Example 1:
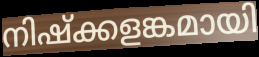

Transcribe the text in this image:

നിഷ്ക്കളങ്കമായി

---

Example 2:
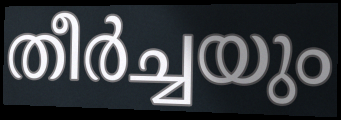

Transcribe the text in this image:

തീർച്ചയും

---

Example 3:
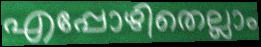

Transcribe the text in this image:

എപ്പോഴിതെല്ലാം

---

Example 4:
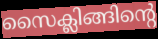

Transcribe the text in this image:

സൈക്ലിങ്ങിന്റെ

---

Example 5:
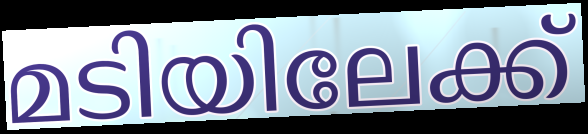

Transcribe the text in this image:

മടിയിലേക്ക്